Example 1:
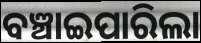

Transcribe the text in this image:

ବଞ୍ଚାଇପାରିଲା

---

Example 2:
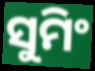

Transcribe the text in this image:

ସୁମିଂ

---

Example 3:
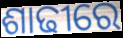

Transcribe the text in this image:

ଶାଢୀରେ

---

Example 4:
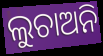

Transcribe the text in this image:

ଲୁଚାଅନି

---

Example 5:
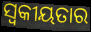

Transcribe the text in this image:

ସ୍ୱକୀୟତାର